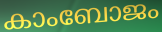
കാംബോജം